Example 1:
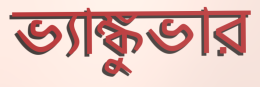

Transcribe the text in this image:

ভ্যাঙ্কুভার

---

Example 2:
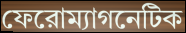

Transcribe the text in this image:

ফেরোম্যাগনেটিক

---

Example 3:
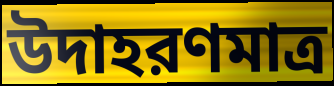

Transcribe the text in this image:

উদাহরণমাত্র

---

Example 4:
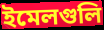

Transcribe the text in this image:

ইমেলগুলি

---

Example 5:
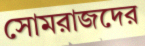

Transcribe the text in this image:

সোমরাজদের